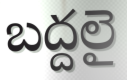
బద్దలై